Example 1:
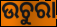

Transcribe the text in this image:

ଉଚୁରା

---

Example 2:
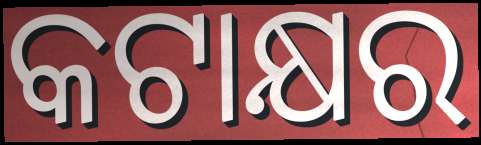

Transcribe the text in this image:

କଟାକ୍ଷର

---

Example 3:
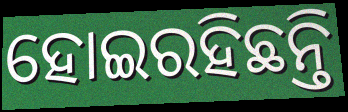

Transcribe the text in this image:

ହୋଇରହିଛନ୍ତି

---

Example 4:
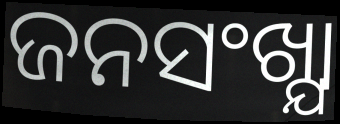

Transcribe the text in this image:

ଜନସଂଖ୍ଯା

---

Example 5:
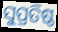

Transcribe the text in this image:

ସୁପ୍ରତିଷ୍ଠ